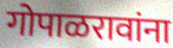
गोपाळरावांना